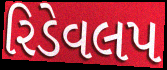
રિડેવલપ